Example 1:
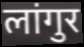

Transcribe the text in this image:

लांगुर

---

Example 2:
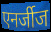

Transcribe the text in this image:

एनर्जीज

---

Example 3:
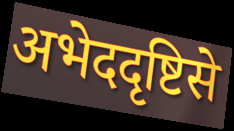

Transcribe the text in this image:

अभेददृष्टिसे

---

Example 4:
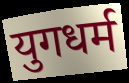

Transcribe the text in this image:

युगधर्म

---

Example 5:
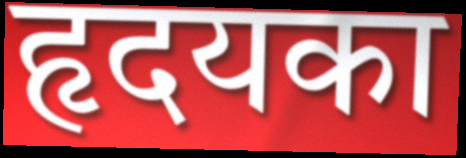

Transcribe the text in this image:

हृदयका